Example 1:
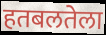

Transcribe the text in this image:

हतबलतेला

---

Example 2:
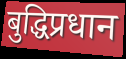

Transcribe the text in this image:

बुद्धिप्रधान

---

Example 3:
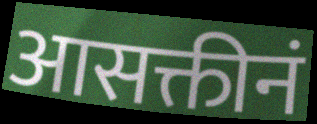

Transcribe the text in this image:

आसक्तीनं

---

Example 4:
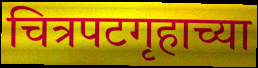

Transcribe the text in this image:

चित्रपटगृहाच्या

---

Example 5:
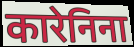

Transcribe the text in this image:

कारेनिना